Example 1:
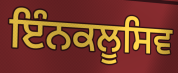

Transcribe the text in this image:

ਇੰਨਕਲੂਸਿਵ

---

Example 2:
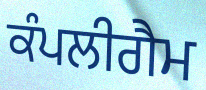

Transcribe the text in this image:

ਕੰਪਲੀਗੈਮ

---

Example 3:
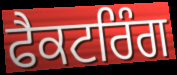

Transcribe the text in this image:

ਫੈਕਟਰਿੰਗ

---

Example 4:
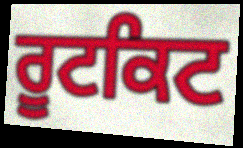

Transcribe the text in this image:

ਰੂਟਕਿਟ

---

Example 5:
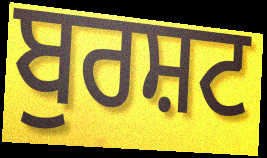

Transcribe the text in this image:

ਬੁਰਸ਼ਟ